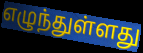
எழுந்துள்ளது